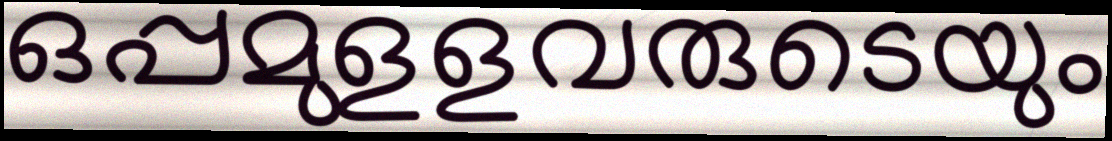
ഒപ്പമുളളവരുടെയും